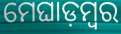
ମେଘାଡ଼ମ୍ବର